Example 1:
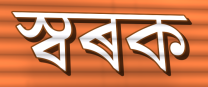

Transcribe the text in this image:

স্বৰক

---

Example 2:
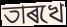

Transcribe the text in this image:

তাৰখে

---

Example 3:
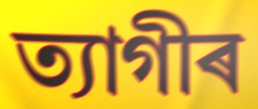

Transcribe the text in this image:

ত্যাগীৰ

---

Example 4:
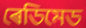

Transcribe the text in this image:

ৰেডিমেড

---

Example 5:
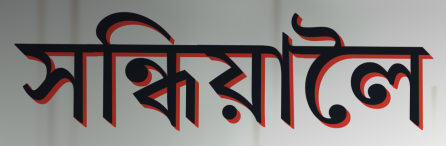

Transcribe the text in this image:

সন্ধিয়ালৈ